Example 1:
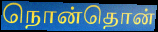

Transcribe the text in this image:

நொன்தொன்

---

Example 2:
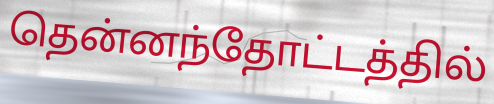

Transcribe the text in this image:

தென்னந்தோட்டத்தில்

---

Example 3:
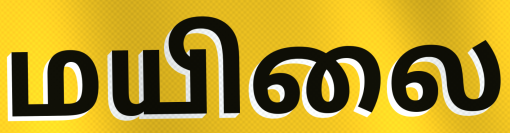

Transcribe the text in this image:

மயிலை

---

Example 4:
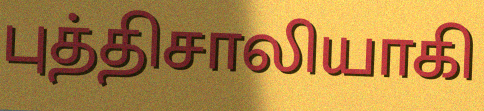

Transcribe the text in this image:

புத்திசாலியாகி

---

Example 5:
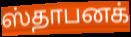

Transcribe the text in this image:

ஸ்தாபனக்